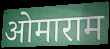
ओमाराम